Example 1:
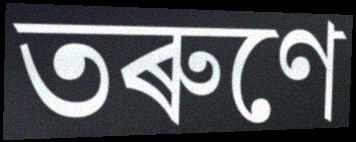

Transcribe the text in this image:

তৰুণে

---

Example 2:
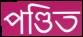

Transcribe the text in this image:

পণ্ডিত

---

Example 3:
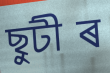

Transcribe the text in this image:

ছুটীৰ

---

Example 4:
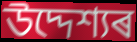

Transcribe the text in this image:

উদ্দেশ্যৰ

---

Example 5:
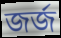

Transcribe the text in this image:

জৰ্জ